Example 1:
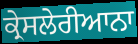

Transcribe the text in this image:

ਕ੍ਰੇਸਲੇਰੀਆਨਾ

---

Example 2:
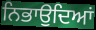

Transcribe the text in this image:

ਨਿਭਾਉਦਿਆਂ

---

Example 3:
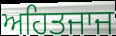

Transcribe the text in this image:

ਅਹਿਤਜਾਜ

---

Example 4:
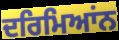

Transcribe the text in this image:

ਦਰਿਮਿਆਂਨ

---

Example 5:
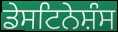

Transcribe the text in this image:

ਡੇਸਟਿਨੇਸ਼ੰਸ